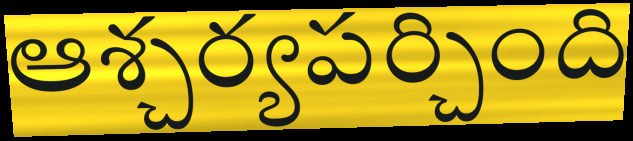
ఆశ్చర్యపర్చింది